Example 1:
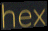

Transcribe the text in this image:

hex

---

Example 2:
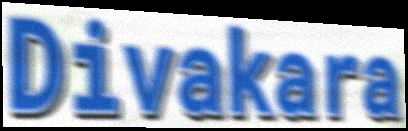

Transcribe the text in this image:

Divakara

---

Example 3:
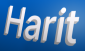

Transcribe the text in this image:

Harit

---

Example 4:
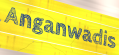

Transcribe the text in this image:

Anganwadis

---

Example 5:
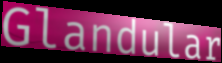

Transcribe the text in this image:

Glandular